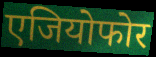
एजियोफोर